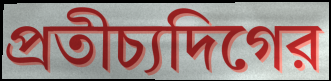
প্রতীচ্যদিগের